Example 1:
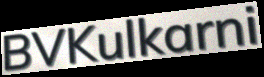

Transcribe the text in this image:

BVKulkarni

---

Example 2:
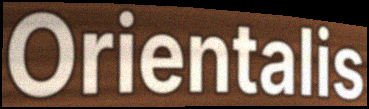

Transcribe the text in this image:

Orientalis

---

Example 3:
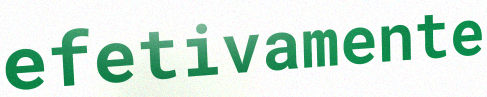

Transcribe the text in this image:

efetivamente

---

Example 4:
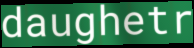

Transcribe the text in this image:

daughetr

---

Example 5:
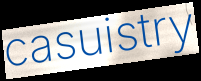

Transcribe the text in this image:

casuistry